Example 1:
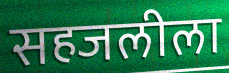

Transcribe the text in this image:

सहजलीला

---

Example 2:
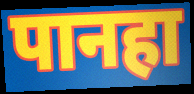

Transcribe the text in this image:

पानहा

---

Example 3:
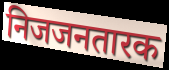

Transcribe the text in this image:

निजजनतारक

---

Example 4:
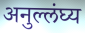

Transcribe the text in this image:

अनुल्लंघ्य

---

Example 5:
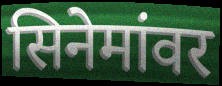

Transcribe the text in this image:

सिनेमांवर